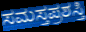
ಸಮಸ್ತಪ್ರಶಸ್ತಿ